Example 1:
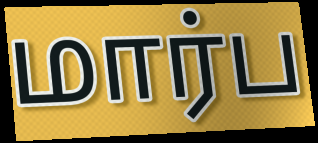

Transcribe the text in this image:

மார்ப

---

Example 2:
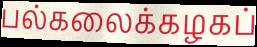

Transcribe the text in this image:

பல்கலைக்கழகப்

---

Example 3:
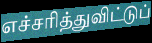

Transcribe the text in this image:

எச்சரித்துவிட்டுப்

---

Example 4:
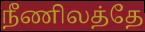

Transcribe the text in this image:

நீணிலத்தே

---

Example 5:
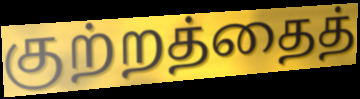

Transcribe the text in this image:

குற்றத்தைத்